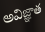
అవిజ్ఞాత